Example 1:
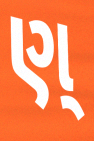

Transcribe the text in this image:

ણ્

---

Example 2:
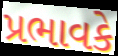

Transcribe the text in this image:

પ્રભાવકે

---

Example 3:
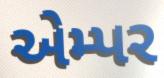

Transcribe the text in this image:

એમ્પર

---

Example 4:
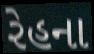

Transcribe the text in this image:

રેહના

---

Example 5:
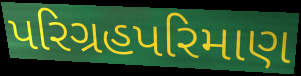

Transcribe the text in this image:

પરિગ્રહપરિમાણ